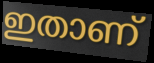
ഇതാണ്